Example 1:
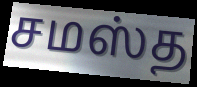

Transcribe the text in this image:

சமஸ்த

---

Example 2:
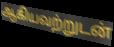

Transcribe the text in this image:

ஆகியவற்றுடன்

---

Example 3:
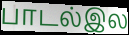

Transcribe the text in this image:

பாடல்இல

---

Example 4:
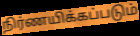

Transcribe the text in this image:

நிர்ணயிக்கப்படும்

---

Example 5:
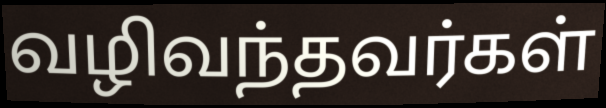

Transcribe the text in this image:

வழிவந்தவர்கள்